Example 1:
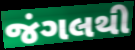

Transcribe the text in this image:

જંગલથી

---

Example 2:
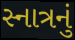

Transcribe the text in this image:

સ્નાત્રનું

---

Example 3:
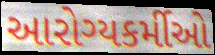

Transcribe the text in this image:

આરોગ્યકર્મીઓ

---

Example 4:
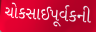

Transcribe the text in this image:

ચોકસાઈપૂર્વકની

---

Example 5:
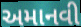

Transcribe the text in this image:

અમાનવી